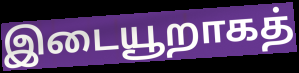
இடையூறாகத்